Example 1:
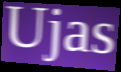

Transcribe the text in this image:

Ujas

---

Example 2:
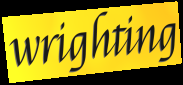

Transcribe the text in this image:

wrighting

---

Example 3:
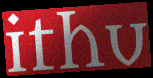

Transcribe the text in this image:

ithu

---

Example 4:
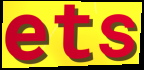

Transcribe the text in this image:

ets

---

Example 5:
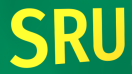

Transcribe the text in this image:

SRU